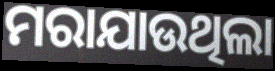
ମରାଯାଉଥିଲା